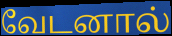
வேடனால்